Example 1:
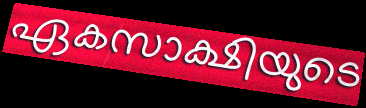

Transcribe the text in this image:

ഏകസാക്ഷിയുടെ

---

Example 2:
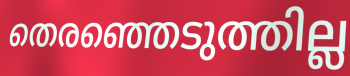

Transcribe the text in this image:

തെരഞ്ഞെടുത്തില്ല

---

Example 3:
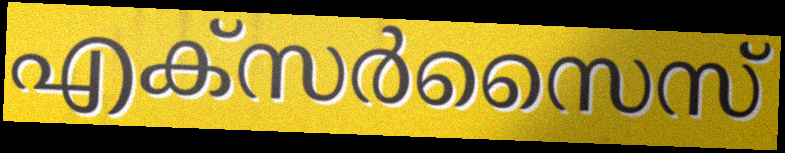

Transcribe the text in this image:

എക്സർസൈസ്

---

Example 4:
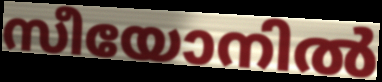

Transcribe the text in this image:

സീയോനിൽ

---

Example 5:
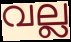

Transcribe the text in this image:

വല്ല